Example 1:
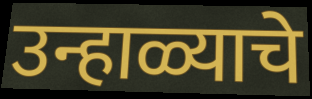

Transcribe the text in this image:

उन्हाळ्याचे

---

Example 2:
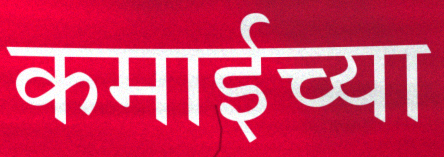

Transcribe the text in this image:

कमाईच्या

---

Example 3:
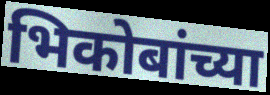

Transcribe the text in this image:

भिकोबांच्या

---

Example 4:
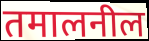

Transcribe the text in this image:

तमालनील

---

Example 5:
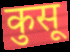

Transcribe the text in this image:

कुसू